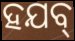
ହଯବ୍